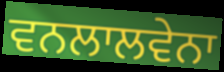
ਵਨਲਾਲਵੇਨਾ